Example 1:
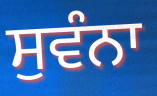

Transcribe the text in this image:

ਸੁਵੰਨਾ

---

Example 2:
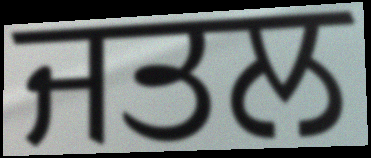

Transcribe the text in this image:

ਜਤਲ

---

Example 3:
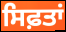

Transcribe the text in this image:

ਸਿਫ਼ਤਾਂ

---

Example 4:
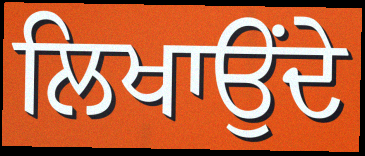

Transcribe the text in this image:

ਲਿਖਾਉਂਦੇ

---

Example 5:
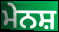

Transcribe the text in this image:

ਮੇਨਸ਼